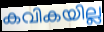
കവികയില്ല